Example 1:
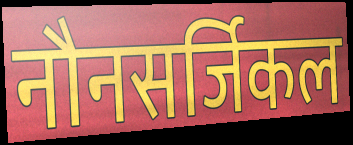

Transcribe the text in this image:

नौनसर्जिकल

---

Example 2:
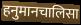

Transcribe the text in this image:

हनुमानचालिसा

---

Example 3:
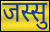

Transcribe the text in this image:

जस्सु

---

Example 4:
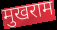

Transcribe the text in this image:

मुखराम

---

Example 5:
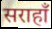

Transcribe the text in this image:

सराहाँ